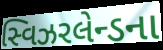
સ્વિઝરલેન્ડના